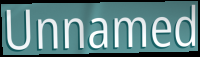
Unnamed